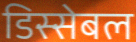
डिस्सेबल